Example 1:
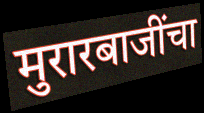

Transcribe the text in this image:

मुरारबाजींचा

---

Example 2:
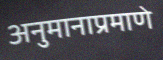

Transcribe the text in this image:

अनुमानाप्रमाणे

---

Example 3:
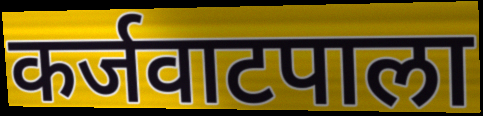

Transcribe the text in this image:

कर्जवाटपाला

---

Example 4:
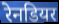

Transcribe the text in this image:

रेनडियर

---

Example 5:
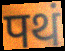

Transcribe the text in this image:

पथं